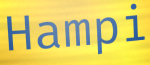
Hampi